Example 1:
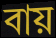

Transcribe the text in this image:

বায়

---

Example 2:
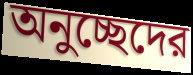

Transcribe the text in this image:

অনুচ্ছেদের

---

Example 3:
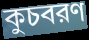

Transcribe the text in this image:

কুচবরণ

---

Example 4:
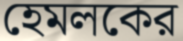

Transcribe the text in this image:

হেমলকের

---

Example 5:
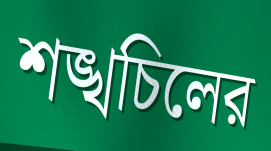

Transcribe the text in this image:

শঙ্খচিলের